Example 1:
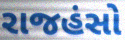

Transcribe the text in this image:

રાજહંસો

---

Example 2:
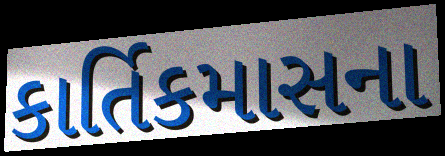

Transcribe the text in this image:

કાર્તિકમાસના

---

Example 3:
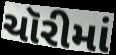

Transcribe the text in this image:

ચૉરીમાં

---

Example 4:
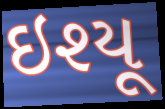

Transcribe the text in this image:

ઇશ્યૂ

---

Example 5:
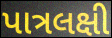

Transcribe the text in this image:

પાત્રલક્ષી